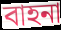
বাহনা